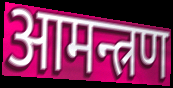
आमन्त्रण